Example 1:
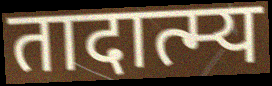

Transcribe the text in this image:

तादात्म्य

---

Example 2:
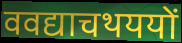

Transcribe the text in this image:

ववद्याचथययों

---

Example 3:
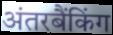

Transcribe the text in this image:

अंतरबैंकिंग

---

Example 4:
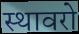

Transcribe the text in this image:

स्थावरो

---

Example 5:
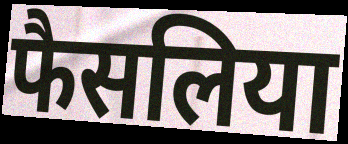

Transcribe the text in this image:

फैसलिया